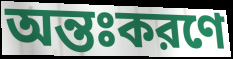
অন্তঃকরণে